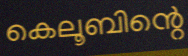
കെലൂബിന്റെ